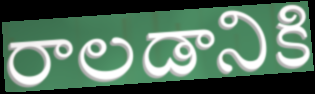
రాలడానికి